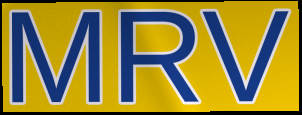
MRV